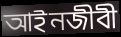
আইনজীবী